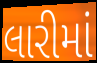
લારીમાં